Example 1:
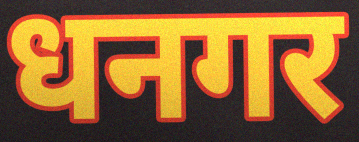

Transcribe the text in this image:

धनगर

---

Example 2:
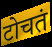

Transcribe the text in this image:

टोचतं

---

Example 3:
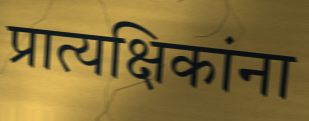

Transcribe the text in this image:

प्रात्यक्षिकांना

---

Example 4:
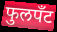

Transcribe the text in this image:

फुलपँट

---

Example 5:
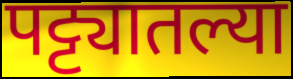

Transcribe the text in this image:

पट्ट्यातल्या